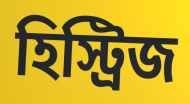
হিস্ট্রিজ